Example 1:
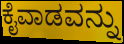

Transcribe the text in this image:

ಕೈವಾಡವನ್ನು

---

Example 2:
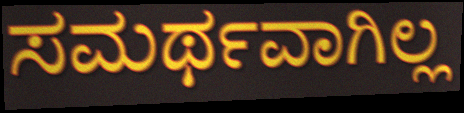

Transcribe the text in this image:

ಸಮರ್ಥವಾಗಿಲ್ಲ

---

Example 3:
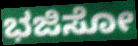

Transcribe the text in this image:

ಭಜಿಸೋ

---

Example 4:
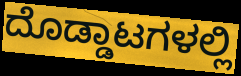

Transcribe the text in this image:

ದೊಡ್ಡಾಟಗಳಲ್ಲಿ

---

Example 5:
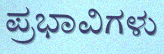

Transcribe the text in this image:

ಪ್ರಭಾವಿಗಳು